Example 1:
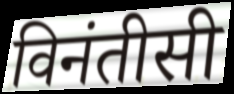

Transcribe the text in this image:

विनंतीसी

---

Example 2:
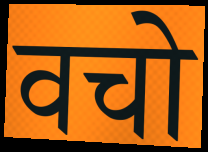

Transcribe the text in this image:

वचो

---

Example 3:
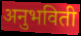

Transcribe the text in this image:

अनुभविती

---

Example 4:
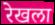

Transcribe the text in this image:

रेखला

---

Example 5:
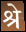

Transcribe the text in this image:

श्रे